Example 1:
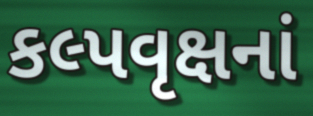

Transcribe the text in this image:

કલ્પવૃક્ષનાં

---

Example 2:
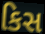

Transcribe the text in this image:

કિસ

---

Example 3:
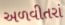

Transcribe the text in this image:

અળવીતરાં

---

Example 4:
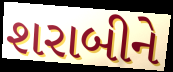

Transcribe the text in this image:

શરાબીને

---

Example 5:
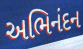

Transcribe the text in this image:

અભિનંદન